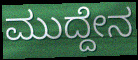
ಮುದ್ದೇನ